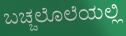
ಬಚ್ಚಲೊಲೆಯಲ್ಲಿ